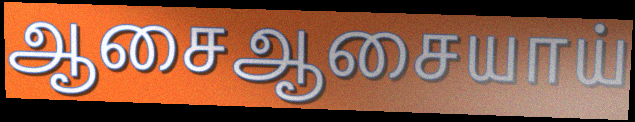
ஆசைஆசையாய்